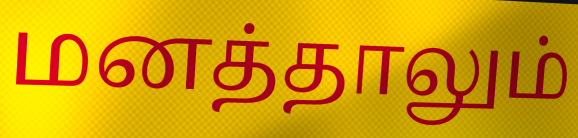
மனத்தாலும்